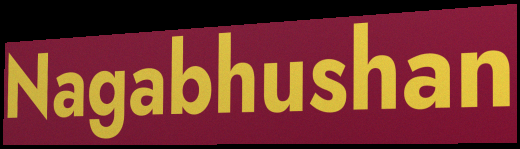
Nagabhushan